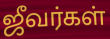
ஜீவர்கள்